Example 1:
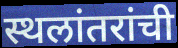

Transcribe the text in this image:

स्थलांतरांची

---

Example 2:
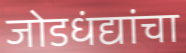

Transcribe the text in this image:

जोडधंद्यांचा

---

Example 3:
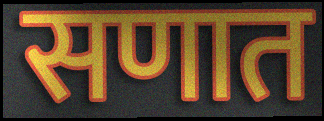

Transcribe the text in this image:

सणात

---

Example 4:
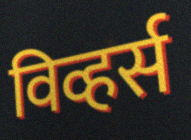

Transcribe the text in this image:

विव्हर्स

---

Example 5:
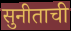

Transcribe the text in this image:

सुनीताची